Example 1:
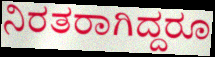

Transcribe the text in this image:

ನಿರತರಾಗಿದ್ದರೂ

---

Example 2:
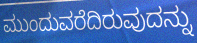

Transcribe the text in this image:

ಮುಂದುವರೆದಿರುವುದನ್ನು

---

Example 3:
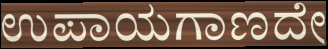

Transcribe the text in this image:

ಉಪಾಯಗಾಣದೇ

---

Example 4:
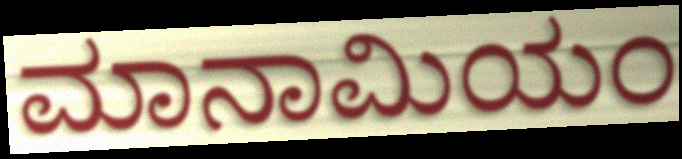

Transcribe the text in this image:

ಮಾನಾಮಿಯಂ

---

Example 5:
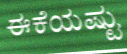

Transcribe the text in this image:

ಈಕೆಯಷ್ಟು